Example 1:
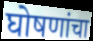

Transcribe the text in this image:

घोषणांचा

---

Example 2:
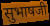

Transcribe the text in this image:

सुभाषजी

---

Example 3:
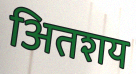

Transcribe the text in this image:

अितशय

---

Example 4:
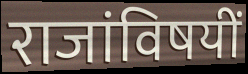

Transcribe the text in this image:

राजांविषयीं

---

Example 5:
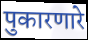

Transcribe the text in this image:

पुकारणारे